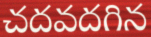
చదవదగిన